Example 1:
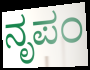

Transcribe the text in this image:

ನೃಪಂ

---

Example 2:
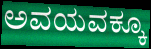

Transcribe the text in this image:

ಅವಯವಕ್ಕೂ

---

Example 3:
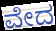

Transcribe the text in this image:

ವೇದ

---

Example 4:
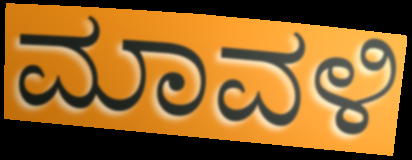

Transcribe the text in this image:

ಮಾವಳಿ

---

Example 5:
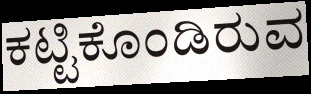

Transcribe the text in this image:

ಕಟ್ಟಿಕೊಂಡಿರುವ